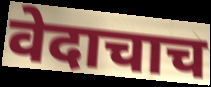
वेदाचाच